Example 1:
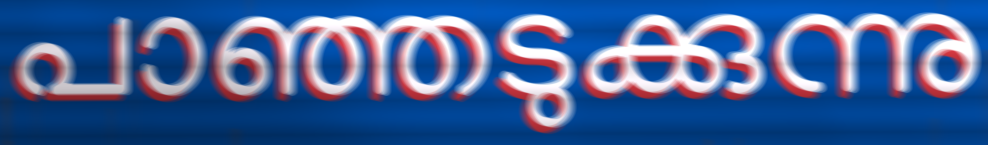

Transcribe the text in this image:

പാഞ്ഞടുക്കുന്നു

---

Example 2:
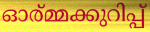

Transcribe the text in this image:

ഓര്മ്മക്കുറിപ്പ്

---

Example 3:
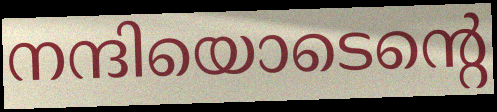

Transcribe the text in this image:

നന്ദിയൊടെന്റെ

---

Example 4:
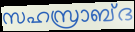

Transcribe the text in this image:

സഹസ്രാബ്ദ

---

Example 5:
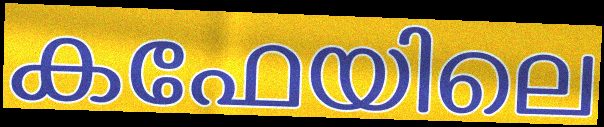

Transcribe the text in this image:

കഫേയിലെ